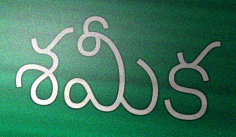
శమీక